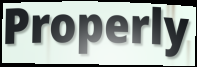
Properly